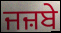
ਜਜ਼ਬੇ